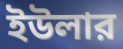
ইউলার